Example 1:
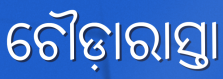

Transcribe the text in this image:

ଚୌଡ଼ାରାସ୍ତା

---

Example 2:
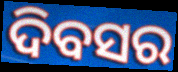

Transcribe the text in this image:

ଦିବସର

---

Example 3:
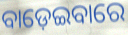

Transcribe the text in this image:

ବାଡ଼େଇବାରେ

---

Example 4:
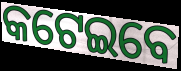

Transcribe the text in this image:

କଟେଇବେ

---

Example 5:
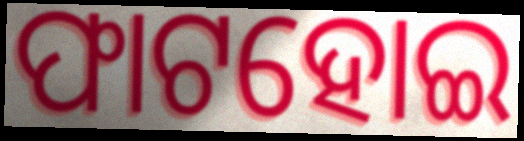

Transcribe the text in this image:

ଫାଟହୋଇ